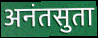
अनंतसुता